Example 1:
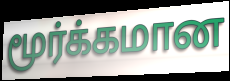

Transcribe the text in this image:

மூர்க்கமான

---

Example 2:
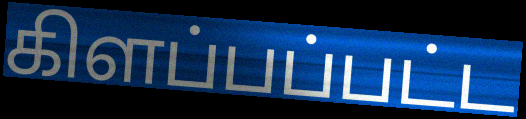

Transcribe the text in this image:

கிளப்பப்பட்ட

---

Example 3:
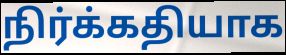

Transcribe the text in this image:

நிர்க்கதியாக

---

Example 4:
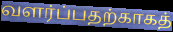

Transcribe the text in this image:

வளர்ப்பதற்காகத்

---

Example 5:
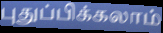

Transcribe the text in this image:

புதுப்பிக்கலாம்